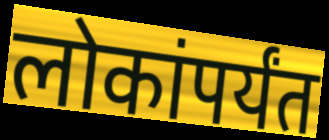
लोकांपर्यंत